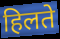
हिलते